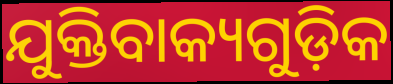
ଯୁକ୍ତିବାକ୍ୟଗୁଡ଼ିକ